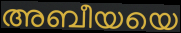
അബീയയെ